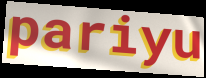
pariyu